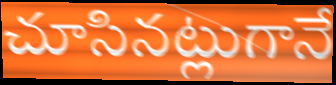
చూసినట్లుగానే